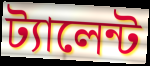
ট্যালেন্ট